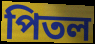
পিতল